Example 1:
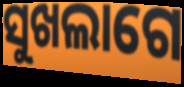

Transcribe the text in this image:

ସୁଖଲାଗେ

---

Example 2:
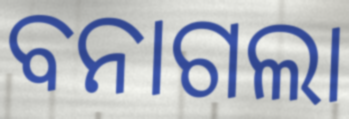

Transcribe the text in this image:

ବନାଗଲା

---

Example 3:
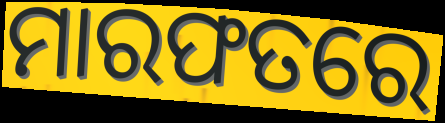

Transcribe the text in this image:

ମାରଫତରେ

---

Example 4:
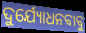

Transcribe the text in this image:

ଦୁର୍ଯ୍ୟୋଧନବାବୁ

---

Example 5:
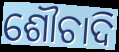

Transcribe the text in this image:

ଶୌଚାଦି